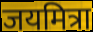
जयमित्रा